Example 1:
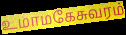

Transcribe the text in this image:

உமாமகேசுவரம்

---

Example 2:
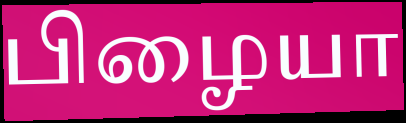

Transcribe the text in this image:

பிழையா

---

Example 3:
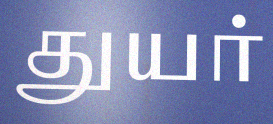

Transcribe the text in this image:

துயர்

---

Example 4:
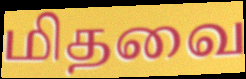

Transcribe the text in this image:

மிதவை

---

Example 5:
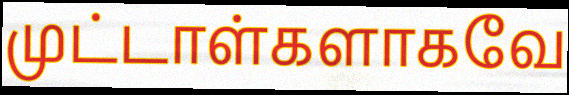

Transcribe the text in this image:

முட்டாள்களாகவே